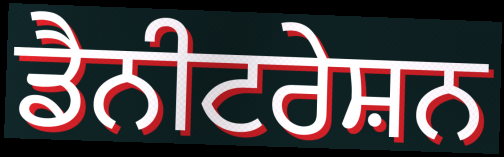
ਡੈਨੀਟਰੇਸ਼ਨ